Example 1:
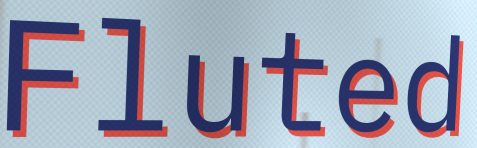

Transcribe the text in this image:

Fluted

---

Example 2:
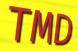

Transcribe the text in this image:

TMD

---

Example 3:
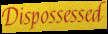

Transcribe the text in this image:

Dispossessed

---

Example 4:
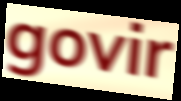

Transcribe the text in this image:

govir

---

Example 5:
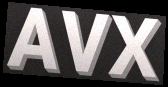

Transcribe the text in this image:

AVX